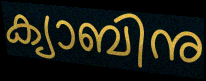
ക്യാബിനു